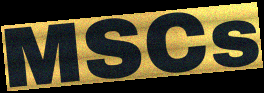
MSCs